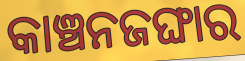
କାଞ୍ଚନଜଙ୍ଘାର